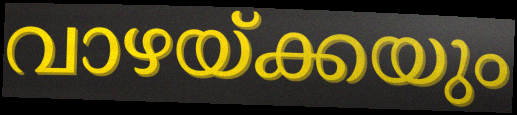
വാഴയ്ക്കയും